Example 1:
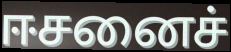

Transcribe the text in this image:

ஈசனைச்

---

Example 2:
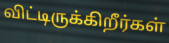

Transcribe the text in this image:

விட்டிருக்கிறீர்கள்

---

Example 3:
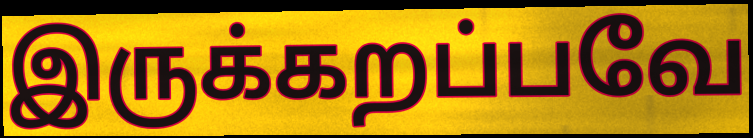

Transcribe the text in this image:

இருக்கறப்பவே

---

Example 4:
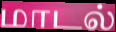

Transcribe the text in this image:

மாடல்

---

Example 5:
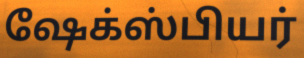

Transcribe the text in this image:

ஷேக்ஸ்பியர்